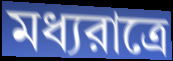
মধ্যরাত্রে